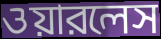
ওয়ারলেস